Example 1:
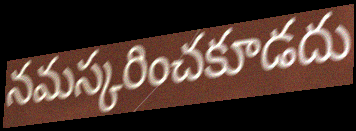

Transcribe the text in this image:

నమస్కరించకూడదు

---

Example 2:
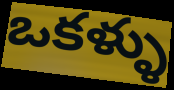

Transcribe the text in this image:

ఒకళ్ళు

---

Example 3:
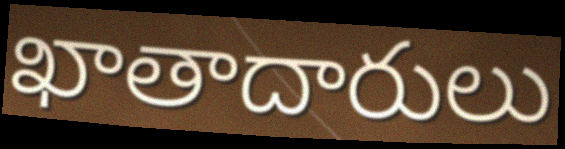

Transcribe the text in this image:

ఖాతాదారులు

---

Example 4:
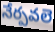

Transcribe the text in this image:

నేర్పవలె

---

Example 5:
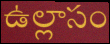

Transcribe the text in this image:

ఉల్లాసం